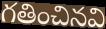
గతించినవి